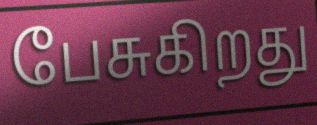
பேசுகிறது